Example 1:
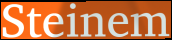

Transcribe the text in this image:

Steinem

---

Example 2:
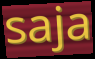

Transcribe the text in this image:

saja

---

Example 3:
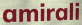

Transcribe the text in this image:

amirali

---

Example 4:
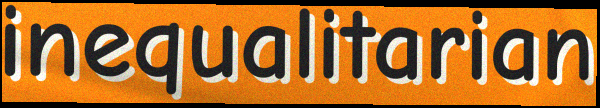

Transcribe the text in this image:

inequalitarian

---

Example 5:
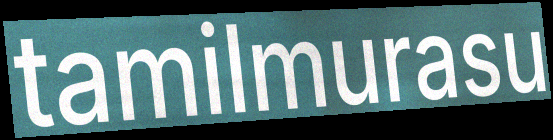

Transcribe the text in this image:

tamilmurasu